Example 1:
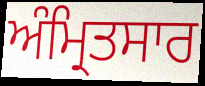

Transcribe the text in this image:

ਅੰਮ੍ਰਿਤਸਾਰ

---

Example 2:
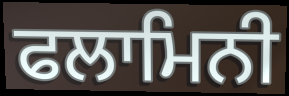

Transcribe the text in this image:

ਫਲਾਮਿਨੀ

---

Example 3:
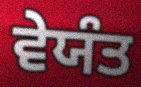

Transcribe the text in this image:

ਵੇਯੰਤ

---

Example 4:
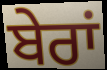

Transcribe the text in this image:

ਬੇਰਾਂ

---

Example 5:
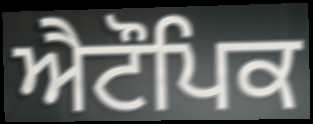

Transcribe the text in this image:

ਐਟੌਪਿਕ